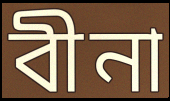
বীনা